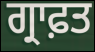
ਗ੍ਰਾਫ਼ਤ